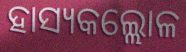
ହାସ୍ୟକଲ୍ଲୋଳ